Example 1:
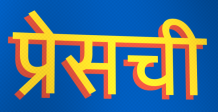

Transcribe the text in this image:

प्रेसची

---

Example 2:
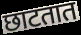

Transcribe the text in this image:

छाटतात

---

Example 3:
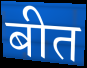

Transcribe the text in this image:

बीत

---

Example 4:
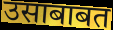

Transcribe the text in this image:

उसाबाबत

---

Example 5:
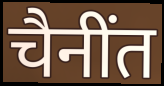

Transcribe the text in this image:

चैनींत